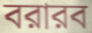
বরারব